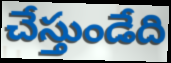
చేస్తుండేది